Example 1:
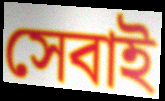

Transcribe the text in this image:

সেবাই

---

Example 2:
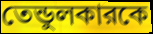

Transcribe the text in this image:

তেন্ডুলকারকে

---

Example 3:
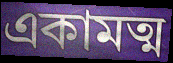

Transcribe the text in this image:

একামত্ম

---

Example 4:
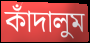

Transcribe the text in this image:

কাঁদালুম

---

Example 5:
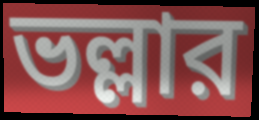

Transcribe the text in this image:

ভল্লার